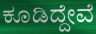
ಕೂಡಿದ್ದೇವೆ